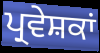
ਪ੍ਰਵੇਸ਼ਕਾਂ